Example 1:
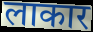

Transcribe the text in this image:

लाकार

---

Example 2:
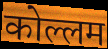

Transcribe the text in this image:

कोल्लम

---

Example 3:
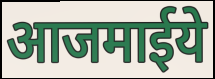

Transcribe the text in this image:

आजमाईये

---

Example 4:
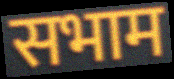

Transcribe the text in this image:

सभाम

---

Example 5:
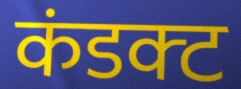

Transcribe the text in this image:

कंडक्‍ट